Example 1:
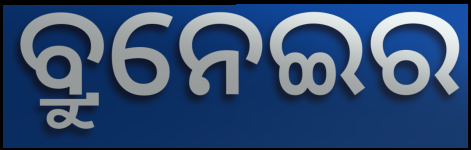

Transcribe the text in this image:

ବ୍ରୁନେଇର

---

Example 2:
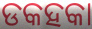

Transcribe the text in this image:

ଡକହକା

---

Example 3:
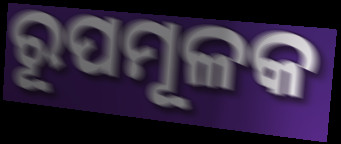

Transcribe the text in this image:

ରୂପମୂଳକ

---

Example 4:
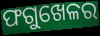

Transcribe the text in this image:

ଫଗୁଖେଳର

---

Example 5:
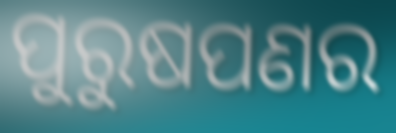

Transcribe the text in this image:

ପୁରୁଷପଣର